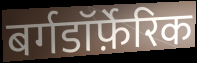
बर्गडॉर्फ़ेरिक